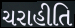
ચરાહીતિ